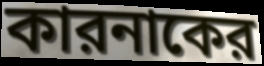
কারনাকের